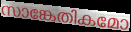
സാങ്കേതികമോ